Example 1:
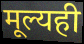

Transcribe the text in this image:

मूल्यही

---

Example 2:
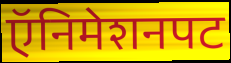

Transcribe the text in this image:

ऍनिमेशनपट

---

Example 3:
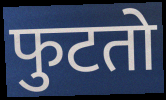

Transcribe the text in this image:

फुटतो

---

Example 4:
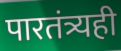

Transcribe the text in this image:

पारतंत्र्यही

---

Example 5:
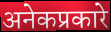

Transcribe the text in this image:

अनेकप्रकारे